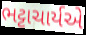
ભટ્ટાચાર્યએ